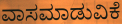
ವಾಸಮಾಡುವಿಕೆ